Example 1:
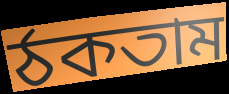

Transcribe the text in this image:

ঠকতাম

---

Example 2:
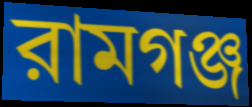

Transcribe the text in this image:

রামগঞ্জ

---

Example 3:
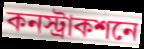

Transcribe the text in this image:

কনস্ট্রাকশনে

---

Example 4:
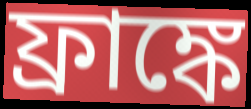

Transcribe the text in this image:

ফ্রাঙ্কে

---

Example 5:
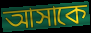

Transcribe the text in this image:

আসাকে